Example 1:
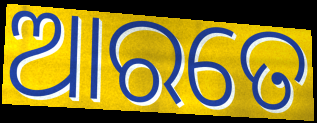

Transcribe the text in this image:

ଆରତେ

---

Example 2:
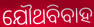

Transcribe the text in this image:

ଯୌଥବିବାହ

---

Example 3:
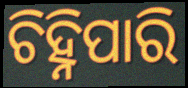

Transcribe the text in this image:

ଚିହ୍ନିପାରି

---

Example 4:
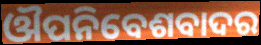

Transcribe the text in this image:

ଔପନିବେଶବାଦର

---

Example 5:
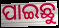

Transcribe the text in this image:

ପାଇଛୁ